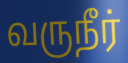
வருநீர்